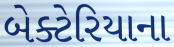
બેક્ટેરિયાના